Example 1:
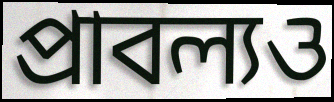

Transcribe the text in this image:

প্রাবল্যও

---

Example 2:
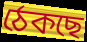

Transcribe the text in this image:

ঠেকছে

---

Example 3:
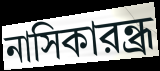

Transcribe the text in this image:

নাসিকারন্ধ্র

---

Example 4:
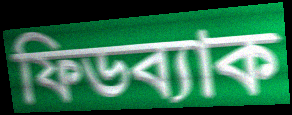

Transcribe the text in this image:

ফিডব্যাক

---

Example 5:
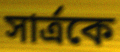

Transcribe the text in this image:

সার্ত্রকে